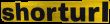
shorturl